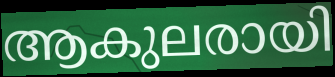
ആകുലരായി